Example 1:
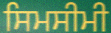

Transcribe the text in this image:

ਸਿਮਸੀਮੀ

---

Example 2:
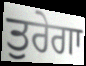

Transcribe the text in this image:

ਤੁਰੇਗਾ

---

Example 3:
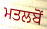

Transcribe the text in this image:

ਮਤਲਬੋਂ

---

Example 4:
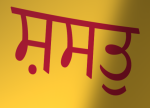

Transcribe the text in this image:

ਸ਼ਸਤੁ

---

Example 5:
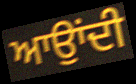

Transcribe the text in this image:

ਆਉਾਂਦੀ